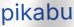
pikabu